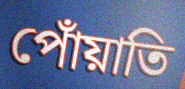
পোঁয়াতি